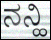
ನನ್ಹಿ